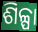
ଶିଳ୍ପା